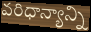
వరిధాన్యాన్ని